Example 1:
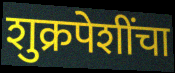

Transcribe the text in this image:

शुक्रपेशींचा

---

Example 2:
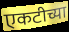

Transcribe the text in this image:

एकटीच्या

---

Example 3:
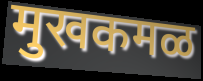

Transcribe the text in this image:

मुखकमळ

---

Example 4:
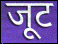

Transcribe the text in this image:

जूट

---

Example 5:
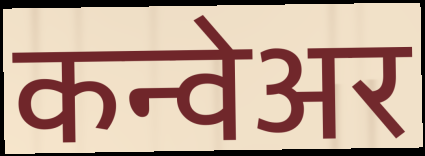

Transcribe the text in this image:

कन्वेअर